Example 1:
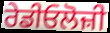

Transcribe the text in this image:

ਰੇਡੀਓਲੋਜ਼ੀ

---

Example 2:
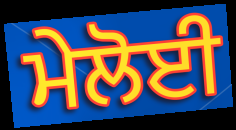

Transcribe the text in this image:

ਮੇਲੋਈ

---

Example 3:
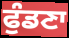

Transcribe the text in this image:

ਫੁੰਡਣਾ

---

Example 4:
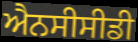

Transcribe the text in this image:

ਐਨਸੀਸੀਡੀ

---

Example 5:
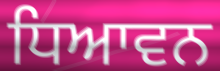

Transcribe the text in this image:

ਧਿਆਵਨ